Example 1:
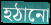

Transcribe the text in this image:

হঠানো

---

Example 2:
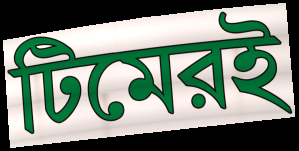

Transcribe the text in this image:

টিমেরই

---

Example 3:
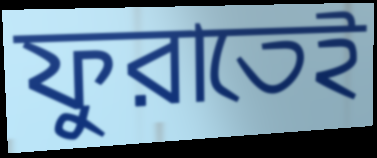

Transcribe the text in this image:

ফুরাতেই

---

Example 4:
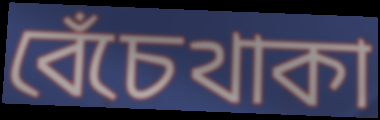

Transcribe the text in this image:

বেঁচেথাকা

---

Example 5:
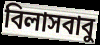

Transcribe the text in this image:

বিলাসবাবু